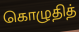
கொழுதித்